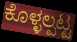
ಕೊಳ್ಳಲ್ಪಟ್ಟ